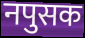
नपुसक